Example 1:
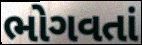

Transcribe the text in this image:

ભોગવતાં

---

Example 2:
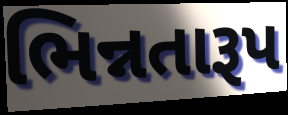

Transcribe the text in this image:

ભિન્નતારૂપ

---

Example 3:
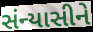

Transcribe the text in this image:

સંન્યાસીને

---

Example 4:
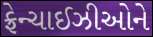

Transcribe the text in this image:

ફ્રેન્ચાઈઝીઓને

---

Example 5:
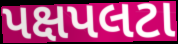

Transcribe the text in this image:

પક્ષપલટા